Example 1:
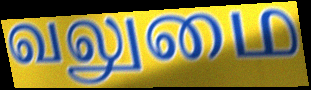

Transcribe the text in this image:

வலுமை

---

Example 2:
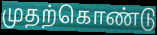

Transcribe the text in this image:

முதற்கொண்டு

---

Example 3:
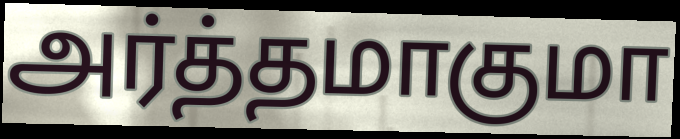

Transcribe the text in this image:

அர்த்தமாகுமா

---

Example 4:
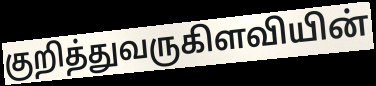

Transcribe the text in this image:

குறித்துவருகிளவியின்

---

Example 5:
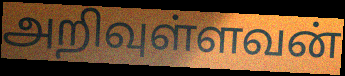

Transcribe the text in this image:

அறிவுள்ளவன்